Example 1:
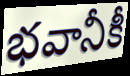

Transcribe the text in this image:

భవానీకీ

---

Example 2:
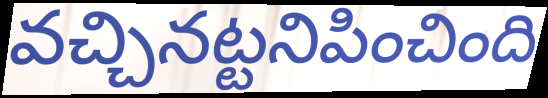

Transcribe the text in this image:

వచ్చినట్టనిపించింది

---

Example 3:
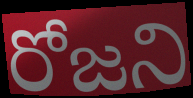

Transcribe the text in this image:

రోజని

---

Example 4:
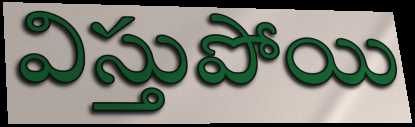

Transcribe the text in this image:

విస్తుపోయి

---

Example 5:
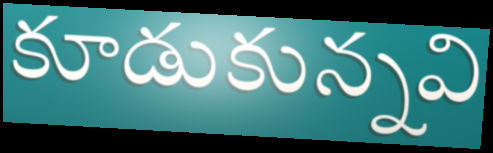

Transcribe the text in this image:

కూడుకున్నవి